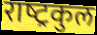
राष्ट्रकुल